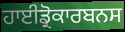
ਹਾਈਡ੍ਰੋਕਾਰਬਨਸ